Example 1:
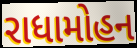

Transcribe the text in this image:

રાધામોહન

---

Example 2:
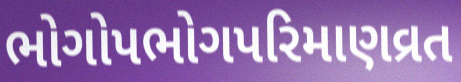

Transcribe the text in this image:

ભોગોપભોગપરિમાણવ્રત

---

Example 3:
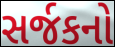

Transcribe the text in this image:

સર્જકનો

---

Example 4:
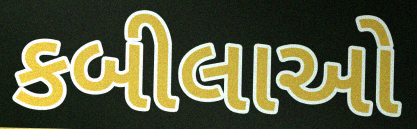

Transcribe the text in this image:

કબીલાઓ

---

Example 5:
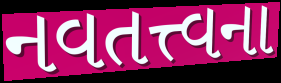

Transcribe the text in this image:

નવતત્ત્વના